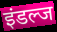
इंडल्ज